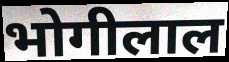
भोगीलाल